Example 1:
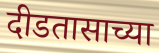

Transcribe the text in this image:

दीडतासाच्या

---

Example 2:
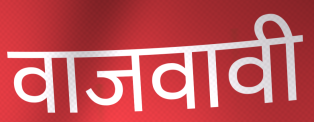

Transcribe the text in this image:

वाजवावी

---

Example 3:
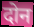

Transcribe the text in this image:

दोन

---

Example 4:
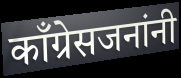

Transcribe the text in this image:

काँग्रेसजनांनी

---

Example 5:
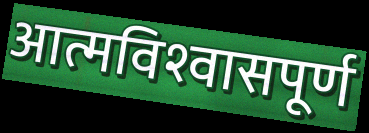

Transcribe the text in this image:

आत्मविश्वासपूर्ण